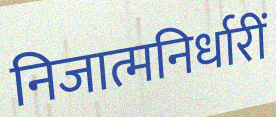
निजात्मनिर्धारीं